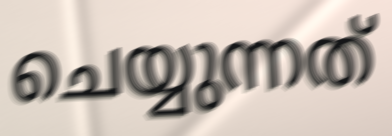
ചെയ്യുന്നത്